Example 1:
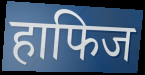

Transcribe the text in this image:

हाफिज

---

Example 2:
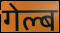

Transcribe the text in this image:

गेल्ब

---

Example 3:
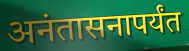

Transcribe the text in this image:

अनंतासनापर्यंत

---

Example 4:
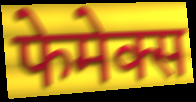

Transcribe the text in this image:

फेमेक्स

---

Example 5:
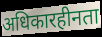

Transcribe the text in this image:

अधिकारहीनता